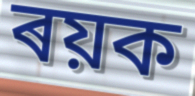
ৰয়ক